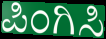
ಪಿಂಗಿಸಿ